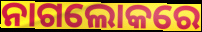
ନାଗଲୋକରେ